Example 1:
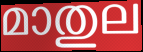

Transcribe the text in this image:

മാതുല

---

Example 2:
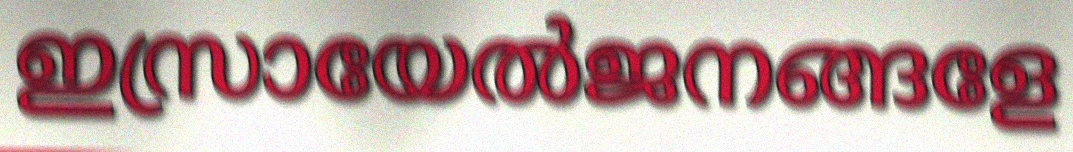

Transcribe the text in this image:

ഇസ്രായേൽജനങ്ങളേ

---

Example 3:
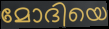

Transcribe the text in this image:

മോദിയെ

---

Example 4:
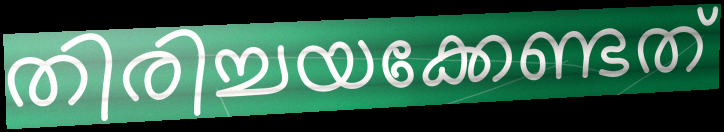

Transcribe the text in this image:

തിരിച്ചയക്കേണ്ടത്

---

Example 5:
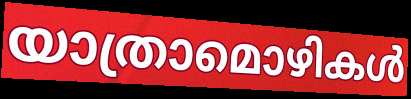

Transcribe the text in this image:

യാത്രാമൊഴികൾ